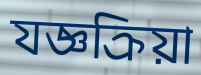
যজ্ঞক্রিয়া